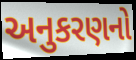
અનુકરણનો